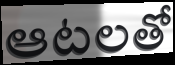
ఆటలతో